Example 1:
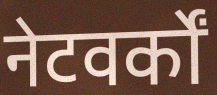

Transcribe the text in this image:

नेटवर्कों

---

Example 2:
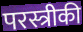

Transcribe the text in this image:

परस्त्रीकी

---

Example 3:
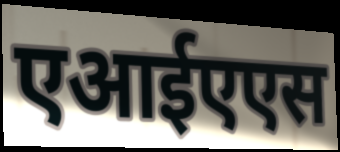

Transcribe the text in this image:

एआईएएस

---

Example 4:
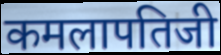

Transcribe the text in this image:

कमलापतिजी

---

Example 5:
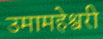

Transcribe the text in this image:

उमामहेश्वरी